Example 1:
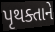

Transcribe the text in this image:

પૃથક્તાને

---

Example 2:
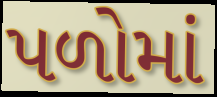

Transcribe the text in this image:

પળોમાં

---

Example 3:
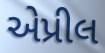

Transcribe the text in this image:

એપ્રીલ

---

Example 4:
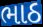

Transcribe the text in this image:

ભાઠ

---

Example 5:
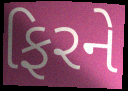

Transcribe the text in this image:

ફિરને